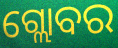
ଗ୍ଲୋବର